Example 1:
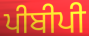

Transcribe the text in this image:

ਪੀਬੀਪੀ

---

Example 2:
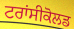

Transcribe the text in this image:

ਟਰਾਂਸੀਕੋਲਡ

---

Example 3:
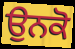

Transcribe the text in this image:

ਉਨਕੋ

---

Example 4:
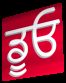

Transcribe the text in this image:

ਡੂਓ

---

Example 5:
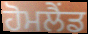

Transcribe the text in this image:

ਹੋਮਲੈਂਡ